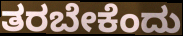
ತರಬೇಕೆಂದು